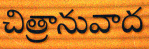
చిత్రానువాద